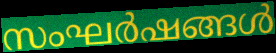
സംഘർഷങ്ങൾ